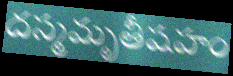
దస్మమృతీషహం